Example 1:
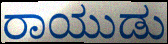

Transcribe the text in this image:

ರಾಯುಡು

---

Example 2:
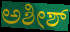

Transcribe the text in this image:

ಅಶೀಶ್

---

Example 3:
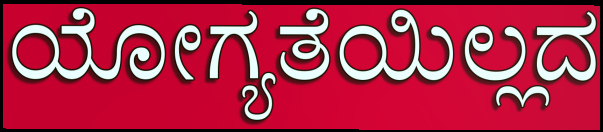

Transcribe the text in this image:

ಯೋಗ್ಯತೆಯಿಲ್ಲದ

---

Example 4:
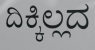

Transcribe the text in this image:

ದಿಕ್ಕಿಲ್ಲದ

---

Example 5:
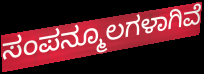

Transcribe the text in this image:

ಸಂಪನ್ಮೂಲಗಳಾಗಿವೆ